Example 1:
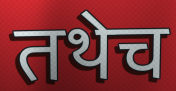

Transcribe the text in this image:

तथेच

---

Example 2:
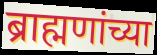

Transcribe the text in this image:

ब्राह्मणांच्या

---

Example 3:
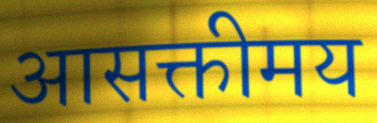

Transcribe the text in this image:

आसक्तीमय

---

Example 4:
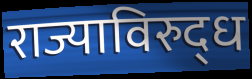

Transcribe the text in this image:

राज्याविरुद्ध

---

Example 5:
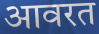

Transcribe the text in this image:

आवरत